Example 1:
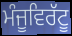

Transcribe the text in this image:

ਮੰਜੂਵਿਰੱਟੂ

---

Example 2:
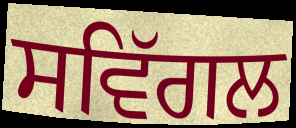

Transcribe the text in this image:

ਸਵਿੱਗਲ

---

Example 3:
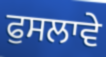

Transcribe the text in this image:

ਫੁਸਲਾਵੇ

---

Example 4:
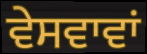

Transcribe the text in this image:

ਵੇਸਵਾਵਾਂ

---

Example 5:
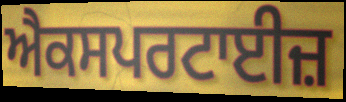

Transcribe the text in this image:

ਐਕਸਪਰਟਾਈਜ਼